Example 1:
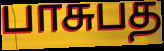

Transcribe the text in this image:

பாசுபத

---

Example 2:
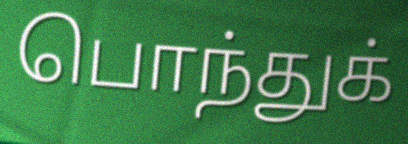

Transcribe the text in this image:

பொந்துக்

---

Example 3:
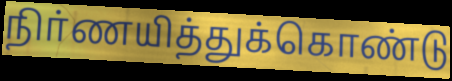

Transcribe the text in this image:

நிர்ணயித்துக்கொண்டு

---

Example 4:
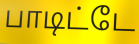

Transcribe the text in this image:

பாடிட்டே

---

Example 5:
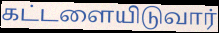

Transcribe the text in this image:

கட்டளையிடுவார்